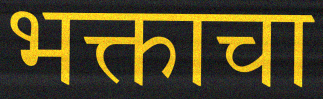
भक्ताचा